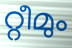
റ്റീമും